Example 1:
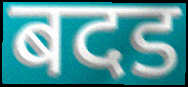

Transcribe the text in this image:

बदड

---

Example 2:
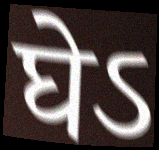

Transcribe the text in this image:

घेऽ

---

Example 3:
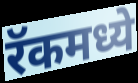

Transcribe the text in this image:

रॅकमध्ये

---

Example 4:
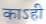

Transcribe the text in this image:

काऽही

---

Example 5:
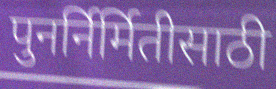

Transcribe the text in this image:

पुनर्निर्मितीसाठी